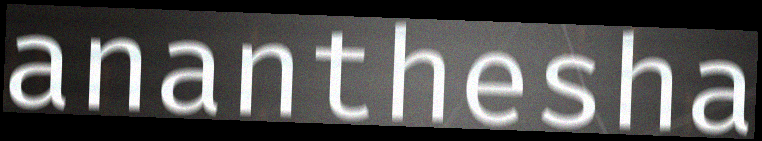
ananthesha